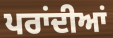
ਪਰਾਂਦੀਆਂ